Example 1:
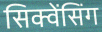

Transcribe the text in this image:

सिक्वेंसिंग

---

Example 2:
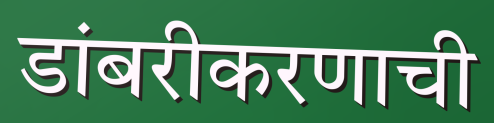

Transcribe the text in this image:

डांबरीकरणाची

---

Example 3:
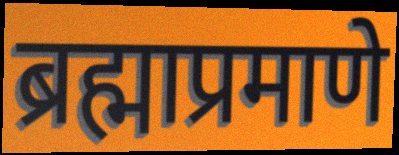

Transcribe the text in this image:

ब्रह्माप्रमाणे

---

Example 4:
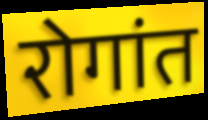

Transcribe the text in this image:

रोगांत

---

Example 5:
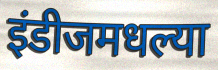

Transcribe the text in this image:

इंडीजमधल्या